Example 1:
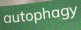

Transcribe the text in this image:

autophagy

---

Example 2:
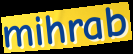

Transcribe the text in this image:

mihrab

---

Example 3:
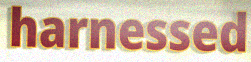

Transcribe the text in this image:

harnessed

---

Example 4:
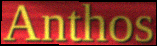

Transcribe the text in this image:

Anthos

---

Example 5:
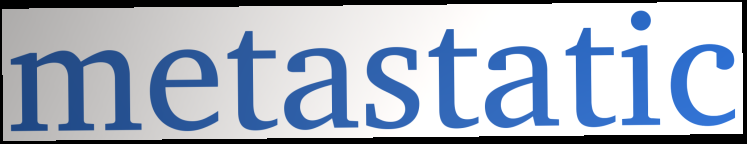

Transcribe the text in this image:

metastatic